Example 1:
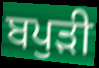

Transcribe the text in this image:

ਬਪੁੜੀ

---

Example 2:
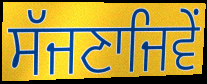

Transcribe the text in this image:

ਸੱਜਣਾਜਿਵੇਂ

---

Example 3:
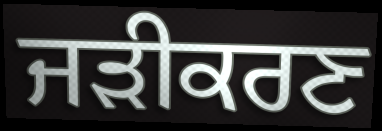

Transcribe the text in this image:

ਜੜੀਕਰਣ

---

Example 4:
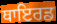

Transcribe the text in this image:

ਥਾਇਰਡ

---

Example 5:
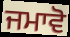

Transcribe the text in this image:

ਜਮਾਵੋ